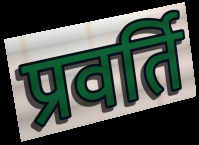
प्रवर्ति